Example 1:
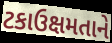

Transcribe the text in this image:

ટકાઉક્ષમતાને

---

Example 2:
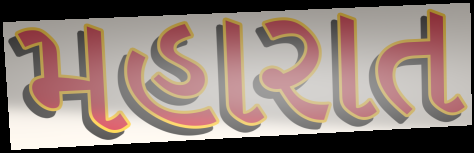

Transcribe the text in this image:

મહારાત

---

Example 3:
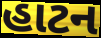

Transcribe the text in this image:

હાટન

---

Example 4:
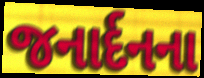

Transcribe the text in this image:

જનાર્દનના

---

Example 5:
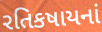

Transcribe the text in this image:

રતિકષાયનાં